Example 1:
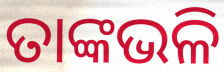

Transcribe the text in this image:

ତାଙ୍କଭଳି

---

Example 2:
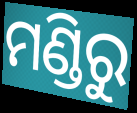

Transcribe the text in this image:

ମଣ୍ଡିରୁ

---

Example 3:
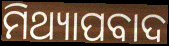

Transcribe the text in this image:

ମିଥ୍ୟାପବାଦ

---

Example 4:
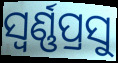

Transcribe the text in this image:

ସ୍ୱର୍ଣ୍ଣପ୍ରସୁ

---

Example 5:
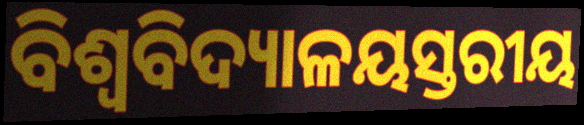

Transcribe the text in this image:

ବିଶ୍ଵବିଦ୍ୟାଳୟସ୍ତରୀୟ